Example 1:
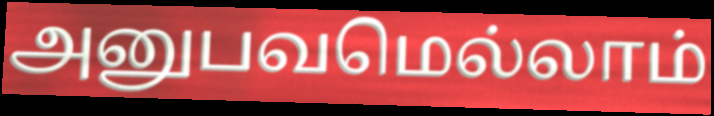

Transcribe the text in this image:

அனுபவமெல்லாம்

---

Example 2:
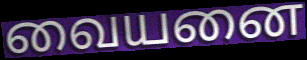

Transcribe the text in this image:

வையனை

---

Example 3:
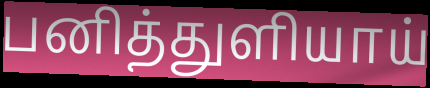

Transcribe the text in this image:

பனித்துளியாய்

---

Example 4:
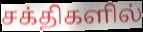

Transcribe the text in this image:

சக்திகளில்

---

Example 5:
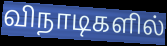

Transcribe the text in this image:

விநாடிகளில்